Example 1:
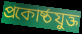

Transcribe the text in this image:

প্রকোষ্ঠযুক্ত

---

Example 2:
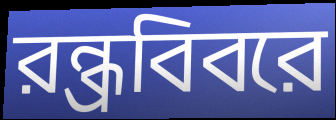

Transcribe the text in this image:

রন্ধ্রবিবরে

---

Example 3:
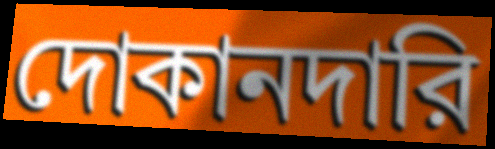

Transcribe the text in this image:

দোকানদারি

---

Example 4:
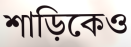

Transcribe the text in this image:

শাড়িকেও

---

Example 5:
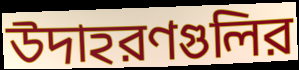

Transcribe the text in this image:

উদাহরণগুলির